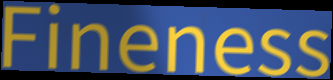
Fineness